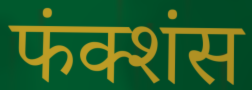
फंक्शंस